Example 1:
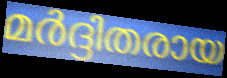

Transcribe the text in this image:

മർദ്ദിതരായ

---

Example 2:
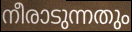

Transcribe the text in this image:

നീരാടുന്നതും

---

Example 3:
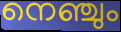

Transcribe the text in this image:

നെഞ്ചും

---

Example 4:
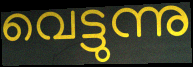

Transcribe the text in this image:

വെട്ടുന്നു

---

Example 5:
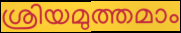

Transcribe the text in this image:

ശ്രിയമുത്തമാം